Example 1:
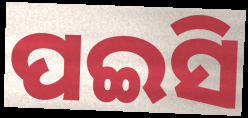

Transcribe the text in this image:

ପଇସି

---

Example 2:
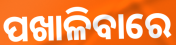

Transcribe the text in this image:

ପଖାଳିବାରେ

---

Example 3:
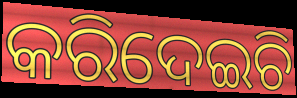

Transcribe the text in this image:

କରିଦେଇଚି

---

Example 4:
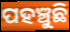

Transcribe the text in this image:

ପହଞ୍ଚୁଛି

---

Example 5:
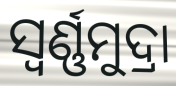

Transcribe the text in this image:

ସ୍ୱର୍ଣ୍ଣମୁଦ୍ରା